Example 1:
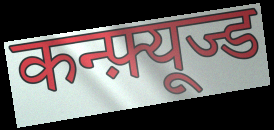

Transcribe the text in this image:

कन्फ़्यूज्ड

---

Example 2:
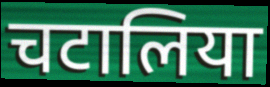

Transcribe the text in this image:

चटालिया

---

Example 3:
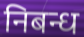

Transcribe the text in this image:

निबन्‍ध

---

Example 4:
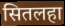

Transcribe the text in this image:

सितलहा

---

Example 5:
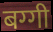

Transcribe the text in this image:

बग्‍गी